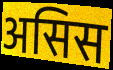
असिस